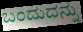
ಬಂದುದನ್ನು